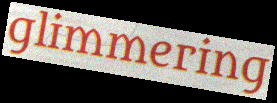
glimmering